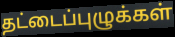
தட்டைப்புழுக்கள்